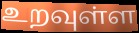
உறவுள்ள